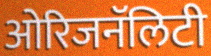
ओरिजनॅलिटी